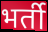
भर्ती